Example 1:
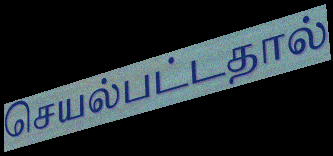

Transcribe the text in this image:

செயல்பட்டதால்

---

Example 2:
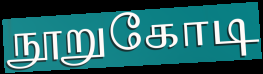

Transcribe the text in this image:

நூறுகோடி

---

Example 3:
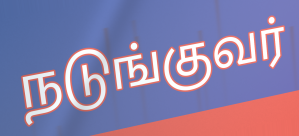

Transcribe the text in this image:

நடுங்குவர்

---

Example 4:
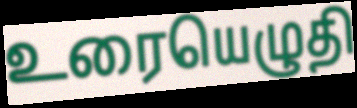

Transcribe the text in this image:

உரையெழுதி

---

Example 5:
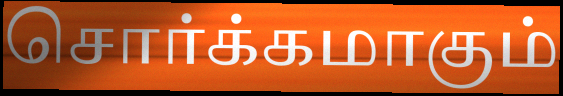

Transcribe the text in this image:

சொர்க்கமாகும்